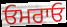
ਓਮਰਾਓ